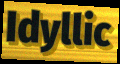
Idyllic